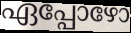
ഏപ്പോഴോ